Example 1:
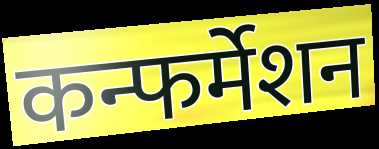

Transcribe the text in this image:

कन्‍फर्मेशन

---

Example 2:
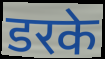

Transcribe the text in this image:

डरके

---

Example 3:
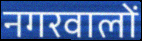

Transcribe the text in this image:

नगरवालों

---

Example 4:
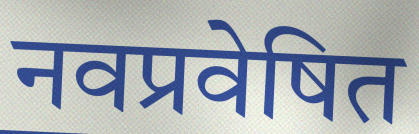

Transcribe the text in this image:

नवप्रवेषित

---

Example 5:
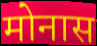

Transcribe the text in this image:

मोनास